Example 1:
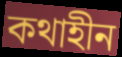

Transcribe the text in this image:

কথাহীন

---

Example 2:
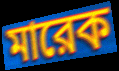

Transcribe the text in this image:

মারেক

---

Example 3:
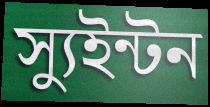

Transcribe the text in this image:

স্যুইন্টন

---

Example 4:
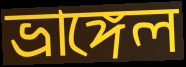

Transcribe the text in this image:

ভ্রাঙ্গেল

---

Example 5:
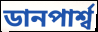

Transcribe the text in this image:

ডানপার্শ্ব